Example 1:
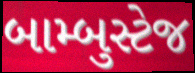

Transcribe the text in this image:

બામ્બુસ્ટેજ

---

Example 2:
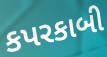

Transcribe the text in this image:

કપરકાબી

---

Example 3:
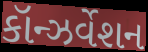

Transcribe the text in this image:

કૉન્ઝર્વેશન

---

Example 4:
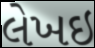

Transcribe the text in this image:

લેખઇ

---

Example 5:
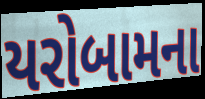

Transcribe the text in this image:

યરોબામના